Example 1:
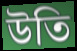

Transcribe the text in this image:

উতি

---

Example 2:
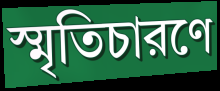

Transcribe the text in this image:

স্মৃতিচারণে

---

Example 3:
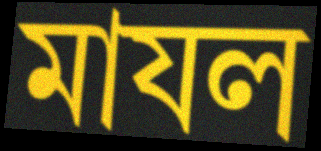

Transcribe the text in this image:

মাযল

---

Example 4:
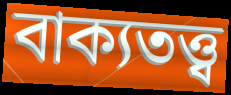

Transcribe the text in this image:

বাক্যতত্ত্ব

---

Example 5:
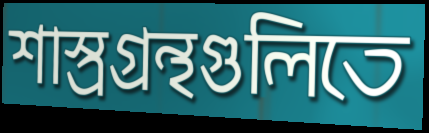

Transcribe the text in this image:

শাস্ত্রগ্রন্থগুলিতে